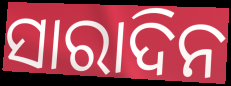
ସାରାଦିନ